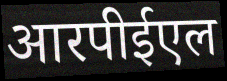
आरपीईएल